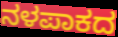
ನಳಪಾಕದ